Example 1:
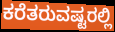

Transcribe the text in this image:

ಕರೆತರುವಷ್ಟರಲ್ಲಿ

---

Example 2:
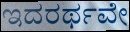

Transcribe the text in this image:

ಇದರರ್ಥವೇ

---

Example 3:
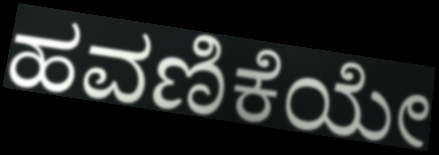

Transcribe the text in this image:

ಹವಣಿಕೆಯೇ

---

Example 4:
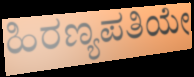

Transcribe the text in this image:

ಹಿರಣ್ಯಪತಿಯೇ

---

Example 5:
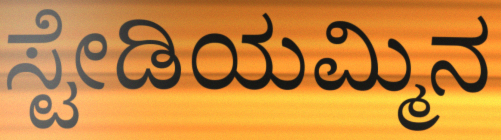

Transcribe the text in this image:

ಸ್ಟೇಡಿಯಮ್ಮಿನ